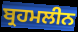
ਬ੍ਰਹਮਲੀਨ